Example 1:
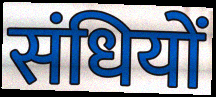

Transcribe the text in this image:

संधियों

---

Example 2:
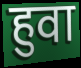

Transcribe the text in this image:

हुवा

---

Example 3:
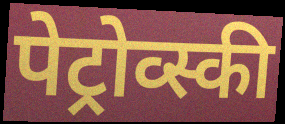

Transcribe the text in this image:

पेट्रोव्स्की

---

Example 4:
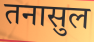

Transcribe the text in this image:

तनासुल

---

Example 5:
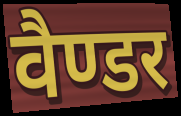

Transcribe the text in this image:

वैण्डर